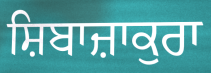
ਸ਼ਿਬਾਜ਼ਾਕੁਰਾ